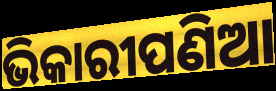
ଭିକାରୀପଣିଆ